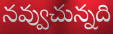
నవ్వుచున్నది